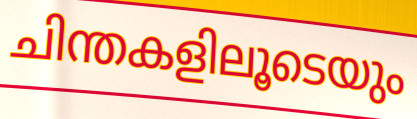
ചിന്തകളിലൂടെയും